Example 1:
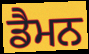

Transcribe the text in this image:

ਡੈਮਨ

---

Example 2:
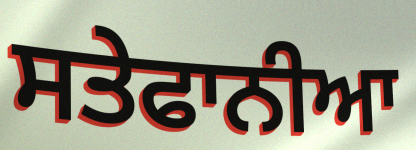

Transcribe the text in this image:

ਸਤੇਫਾਨੀਆ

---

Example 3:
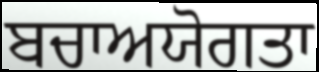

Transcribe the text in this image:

ਬਚਾਅਯੋਗਤਾ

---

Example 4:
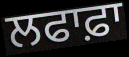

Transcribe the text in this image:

ਲਫਾਫ਼ਾ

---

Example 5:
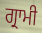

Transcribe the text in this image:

ਗ੍ਰਾਮੀ